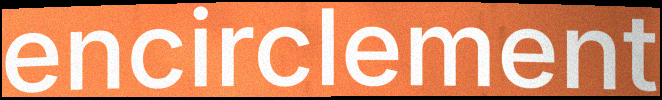
encirclement